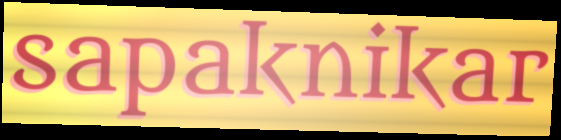
sapaknikar